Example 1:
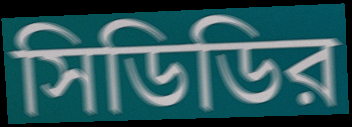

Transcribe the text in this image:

সিডিডির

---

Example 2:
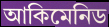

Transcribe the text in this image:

আকিমেনিড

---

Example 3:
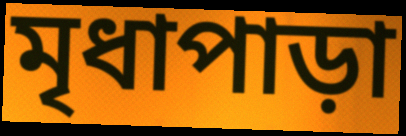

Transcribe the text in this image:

মৃধাপাড়া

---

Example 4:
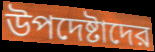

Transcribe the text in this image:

উপদেষ্টাদের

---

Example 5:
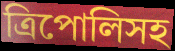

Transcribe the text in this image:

ত্রিপোলিসহ